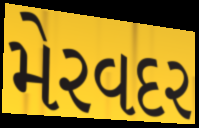
મેરવદર